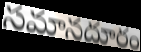
సమానదూరం